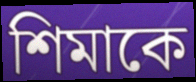
শিমাকে